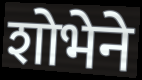
शोभेने